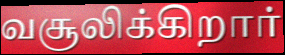
வசூலிக்கிறார்